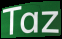
Taz